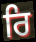
ਰਿ